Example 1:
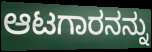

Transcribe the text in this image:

ಆಟಗಾರನನ್ನು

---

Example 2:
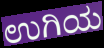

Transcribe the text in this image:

ಉಗಿಯ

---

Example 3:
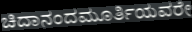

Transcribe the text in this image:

ಚಿದಾನಂದಮೂರ್ತಿಯವರೇ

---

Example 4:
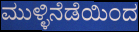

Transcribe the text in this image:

ಮುಳ್ಳಿನೆಡೆಯಿಂದ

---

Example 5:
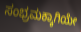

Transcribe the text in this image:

ಸಂಭ್ರಮಕ್ಕಾಗಿಯೇ